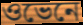
ওভেনে